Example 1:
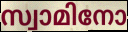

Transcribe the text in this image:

സ്വാമിനോ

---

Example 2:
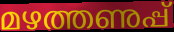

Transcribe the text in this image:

മഴത്തണുപ്പ്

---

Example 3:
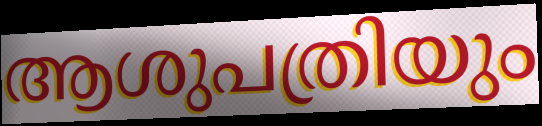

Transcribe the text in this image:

ആശുപത്രിയും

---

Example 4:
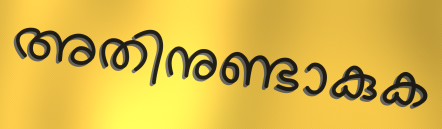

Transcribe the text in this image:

അതിനുണ്ടാകുക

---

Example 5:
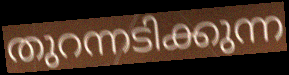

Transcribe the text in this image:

തുറന്നടിക്കുന്ന